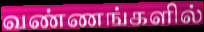
வண்ணங்களில்